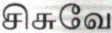
சிசுவே